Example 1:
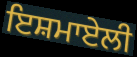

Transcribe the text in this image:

ਇਸ਼ਮਾਏਲੀ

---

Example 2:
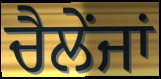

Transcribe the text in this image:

ਚੈਲੇਂਜਾਂ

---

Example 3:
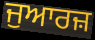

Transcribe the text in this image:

ਜੁਆਰਜ਼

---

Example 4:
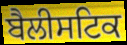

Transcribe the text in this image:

ਬੈਲੀਸਟਿਕ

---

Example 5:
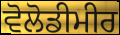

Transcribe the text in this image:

ਵੋਲੋਡੀਮੀਰ